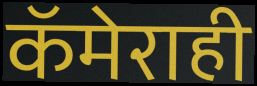
कॅमेराही